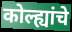
कोल्ह्यांचे